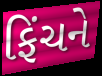
ફિંચને